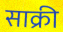
साक्री